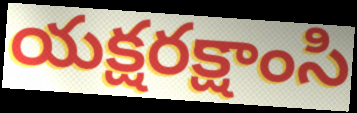
యక్షరక్షాంసి